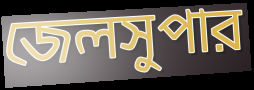
জেলসুপার